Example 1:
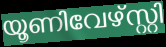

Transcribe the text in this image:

യൂണിവേഴ്സ്റ്റി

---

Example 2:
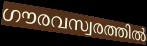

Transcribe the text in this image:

ഗൗരവസ്വരത്തിൽ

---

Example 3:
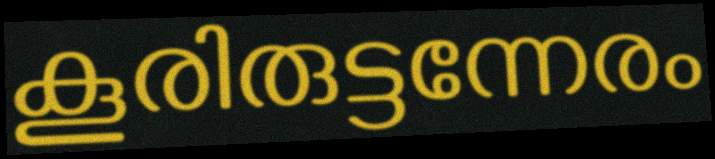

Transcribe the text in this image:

കൂരിരുട്ടന്നേരം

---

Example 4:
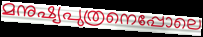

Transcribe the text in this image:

മനുഷ്യപുത്രനെപ്പോലെ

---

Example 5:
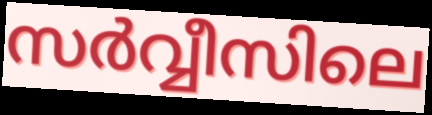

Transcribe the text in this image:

സർവ്വീസിലെ